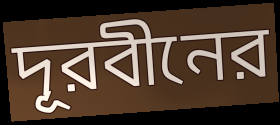
দূরবীনের